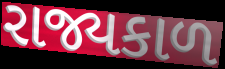
રાજ્યકાળ